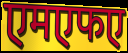
एमएफए